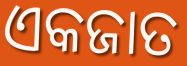
ଏକଜାତ